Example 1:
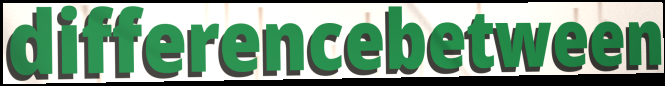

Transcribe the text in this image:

differencebetween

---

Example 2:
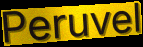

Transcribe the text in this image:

Peruvel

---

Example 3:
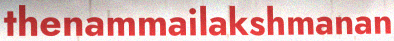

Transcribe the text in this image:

thenammailakshmanan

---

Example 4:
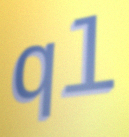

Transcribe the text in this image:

ql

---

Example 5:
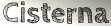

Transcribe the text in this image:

Cisterna